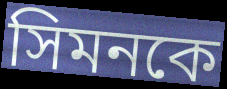
সিমনকে